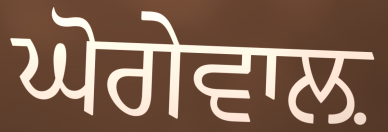
ਘੋਗੇਵਾਲ਼